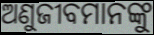
ଅଣୁଜୀବମାନଙ୍କୁ